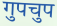
गुपचुप